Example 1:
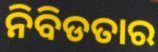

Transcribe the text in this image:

ନିବିଡତାର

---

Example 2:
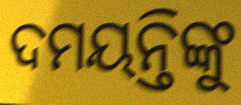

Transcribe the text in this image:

ଦମୟନ୍ତିଙ୍କୁ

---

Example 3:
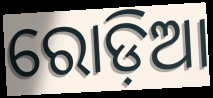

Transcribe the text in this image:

ରୋଡ଼ିଆ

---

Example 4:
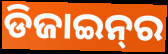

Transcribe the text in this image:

ଡିଜାଇନ୍‌ର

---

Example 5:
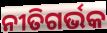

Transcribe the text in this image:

ନୀତିଗର୍ଭକ